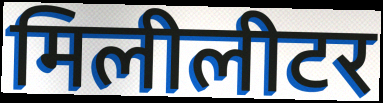
मिलीलीटर